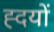
ह्दयों